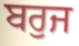
ਬਰੁਜ